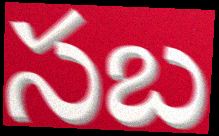
సబ